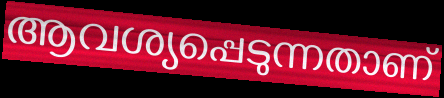
ആവശ്യപ്പെടുന്നതാണ്